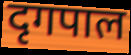
दृगपाल